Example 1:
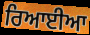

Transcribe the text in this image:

ਰਿਆਈਆ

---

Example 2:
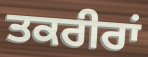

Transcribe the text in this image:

ਤਕਰੀਰਾਂ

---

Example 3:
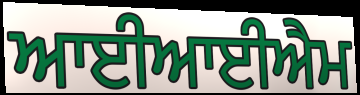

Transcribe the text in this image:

ਆਈਆਈਐਮ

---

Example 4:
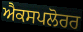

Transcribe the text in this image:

ਐਕਸਪਲੋਰਰ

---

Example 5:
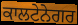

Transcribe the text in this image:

ਕਾਲਟੇਨੇਗਰ